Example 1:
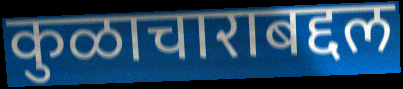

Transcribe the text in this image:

कुळाचाराबद्दल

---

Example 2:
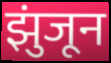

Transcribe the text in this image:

झुंजून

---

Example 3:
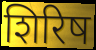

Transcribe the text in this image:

शिरिष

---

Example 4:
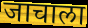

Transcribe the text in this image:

जाचाला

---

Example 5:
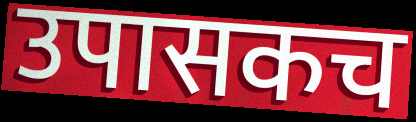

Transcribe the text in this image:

उपासकच